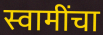
स्वामींचा